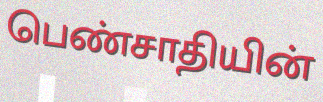
பெண்சாதியின்